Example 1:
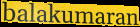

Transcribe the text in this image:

balakumaran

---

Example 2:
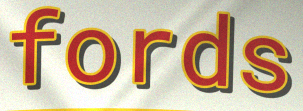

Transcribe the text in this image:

fords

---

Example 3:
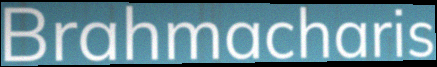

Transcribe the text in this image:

Brahmacharis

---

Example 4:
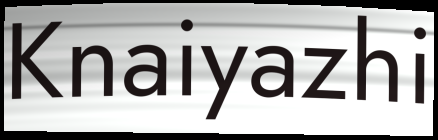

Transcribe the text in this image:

Knaiyazhi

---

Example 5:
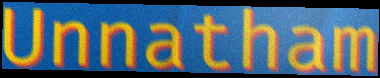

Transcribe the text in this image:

Unnatham